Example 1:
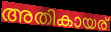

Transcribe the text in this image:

അതികായര്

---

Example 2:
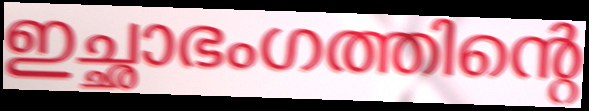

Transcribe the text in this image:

ഇച്ഛാഭംഗത്തിന്റെ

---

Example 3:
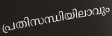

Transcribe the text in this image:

പ്രതിസന്ധിയിലാവും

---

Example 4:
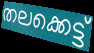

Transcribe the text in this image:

തലക്കെട്ട്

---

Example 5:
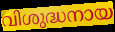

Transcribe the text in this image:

വിശുദ്ധനായ